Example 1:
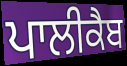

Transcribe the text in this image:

ਪਾਲੀਕੈਬ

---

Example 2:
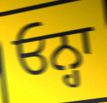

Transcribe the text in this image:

ਓਨ੍ਹਾ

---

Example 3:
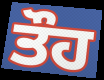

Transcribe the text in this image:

ਤੌਹ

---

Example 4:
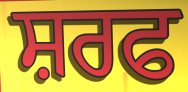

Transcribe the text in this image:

ਸ਼ਰਫ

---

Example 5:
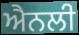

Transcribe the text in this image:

ਐਨਲੀ